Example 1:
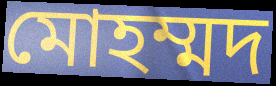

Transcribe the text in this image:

মোহম্মদ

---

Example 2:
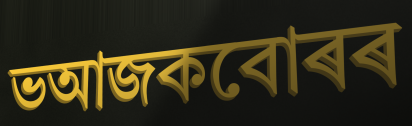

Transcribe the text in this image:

ভআজকবোৰৰ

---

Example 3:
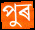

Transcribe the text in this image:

পুৰ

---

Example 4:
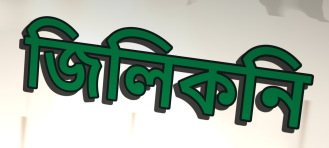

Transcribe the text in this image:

জিলিকনি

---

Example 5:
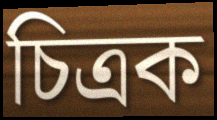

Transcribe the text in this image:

চিত্ৰক